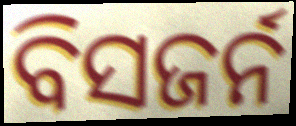
ବିସଜର୍ନ